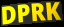
DPRK